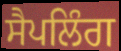
ਸੈਪਲਿੰਗ